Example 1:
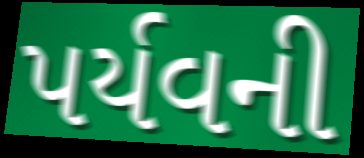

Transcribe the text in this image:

પર્યવની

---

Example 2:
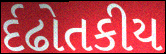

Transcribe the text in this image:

ર્દઢોતકીય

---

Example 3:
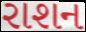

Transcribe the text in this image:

રાશન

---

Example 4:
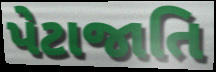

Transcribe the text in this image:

પેટાજાતિ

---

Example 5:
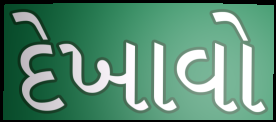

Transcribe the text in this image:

દેખાવો